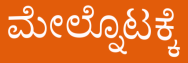
ಮೇಲ್ನೊಟಕ್ಕೆ